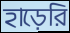
হাড়েরি